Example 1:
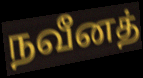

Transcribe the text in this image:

நவீனத்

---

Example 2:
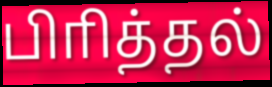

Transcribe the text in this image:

பிரித்தல்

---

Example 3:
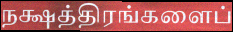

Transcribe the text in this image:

நக்ஷத்திரங்களைப்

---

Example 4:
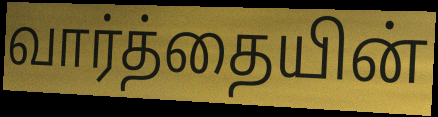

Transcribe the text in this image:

வார்த்தையின்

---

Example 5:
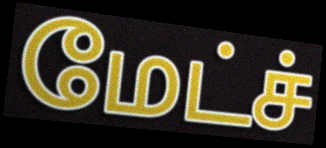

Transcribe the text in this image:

மேட்ச்